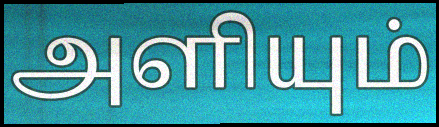
அளியும்